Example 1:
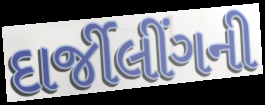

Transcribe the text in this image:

દાર્જીલીંગની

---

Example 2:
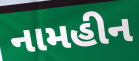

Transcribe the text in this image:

નામહીન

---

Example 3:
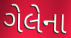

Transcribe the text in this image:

ગેલેના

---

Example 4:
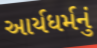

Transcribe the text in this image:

આર્યધર્મનું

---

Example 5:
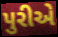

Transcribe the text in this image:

પુરીએ